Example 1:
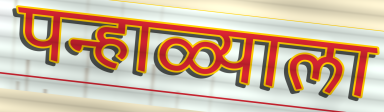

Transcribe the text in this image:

पन्हाळ्याला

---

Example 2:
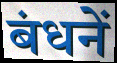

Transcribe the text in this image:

बंधनें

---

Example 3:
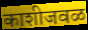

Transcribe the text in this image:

काशीजवळ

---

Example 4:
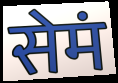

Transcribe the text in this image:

सेमं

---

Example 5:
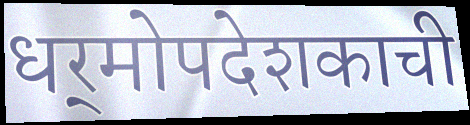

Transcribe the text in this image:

धर्मोपदेशकाची